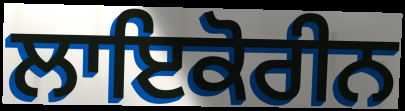
ਲਾਇਕੋਰੀਨ